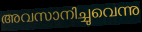
അവസാനിച്ചുവെന്നു